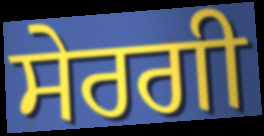
ਸੇਰਗੀ